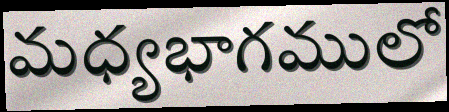
మధ్యభాగములో